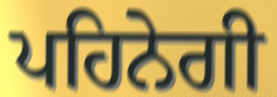
ਪਹਿਨੇਗੀ